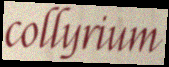
collyrium